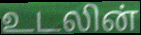
உடலின்